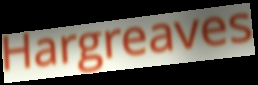
Hargreaves